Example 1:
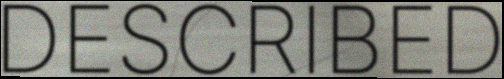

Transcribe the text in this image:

DESCRIBED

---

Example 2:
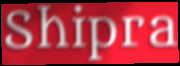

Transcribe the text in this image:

Shipra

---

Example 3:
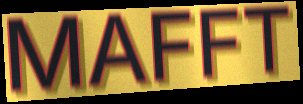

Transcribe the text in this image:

MAFFT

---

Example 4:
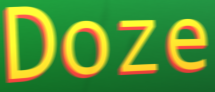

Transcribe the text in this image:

Doze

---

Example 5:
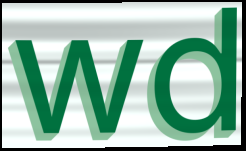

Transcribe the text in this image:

wd